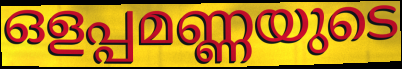
ഒളപ്പമണ്ണയുടെ